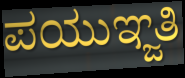
ಪಯುಞ್ಜತಿ